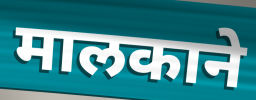
मालकाने